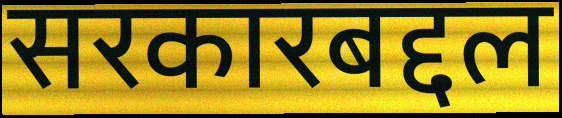
सरकारबद्दल